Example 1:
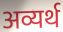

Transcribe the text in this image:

अव्यर्थ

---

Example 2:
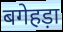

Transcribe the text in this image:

बगेहड़ा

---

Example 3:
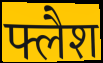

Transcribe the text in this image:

फ्लैश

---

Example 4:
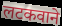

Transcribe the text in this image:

लटकवाने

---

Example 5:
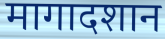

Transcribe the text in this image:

मागादशान